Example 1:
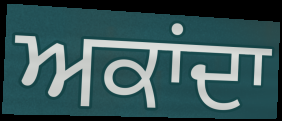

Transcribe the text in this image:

ਅਕਾਂਦਾ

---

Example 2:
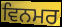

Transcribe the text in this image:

ਵਿਨਮਰ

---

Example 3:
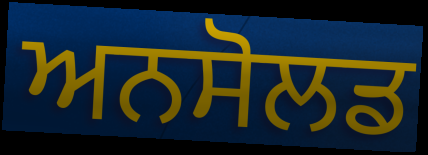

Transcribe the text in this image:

ਅਨਸੋਲਡ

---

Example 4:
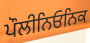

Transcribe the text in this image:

ਪੌਲੀਨਿਓਨਿਕ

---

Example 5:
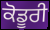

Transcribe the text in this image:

ਕੋਡੂਰੀ